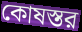
কোষস্তর